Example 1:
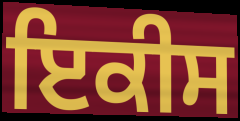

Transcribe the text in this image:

ਇਕੀਸ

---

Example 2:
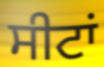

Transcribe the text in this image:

ਸੀਟਾਂ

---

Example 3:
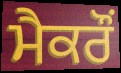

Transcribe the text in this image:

ਮੈਕਰੌਂ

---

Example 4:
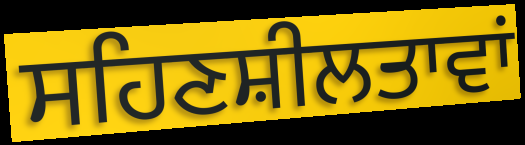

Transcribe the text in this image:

ਸਹਿਣਸ਼ੀਲਤਾਵਾਂ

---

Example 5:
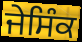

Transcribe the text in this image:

ਜੇਸਿੰਕ